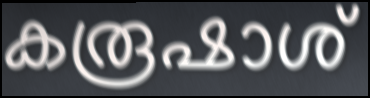
കരൂഷാശ്